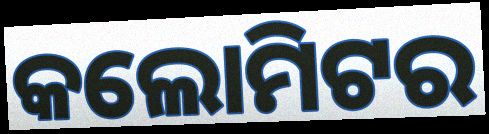
କଲୋମିଟର